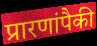
प्रारणांपैकी